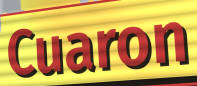
Cuaron